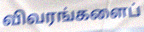
விவரங்களைப்